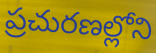
ప్రచురణల్లోని